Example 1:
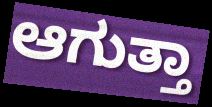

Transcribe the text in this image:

ಆಗುತ್ತಾ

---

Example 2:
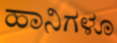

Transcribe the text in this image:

ಹಾನಿಗಳೂ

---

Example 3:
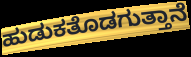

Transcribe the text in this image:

ಹುಡುಕತೊಡಗುತ್ತಾನೆ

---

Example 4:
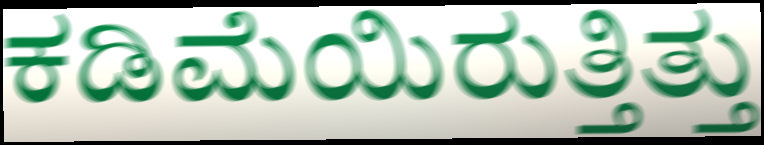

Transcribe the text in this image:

ಕಡಿಮೆಯಿರುತ್ತಿತ್ತು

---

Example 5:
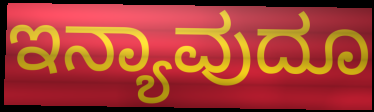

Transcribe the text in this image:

ಇನ್ಯಾವುದೂ